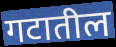
गटातील